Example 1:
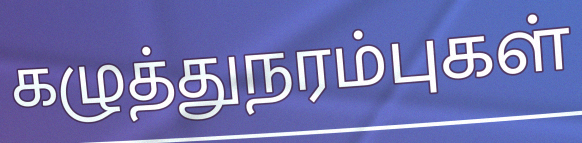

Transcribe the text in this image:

கழுத்துநரம்புகள்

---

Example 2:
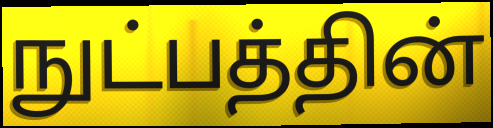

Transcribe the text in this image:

நுட்பத்தின்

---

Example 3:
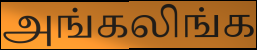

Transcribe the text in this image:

அங்கலிங்க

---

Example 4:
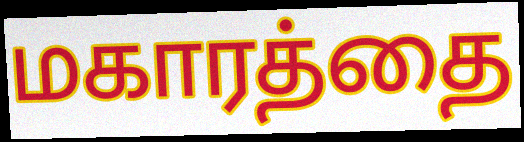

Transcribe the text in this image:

மகாரத்தை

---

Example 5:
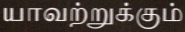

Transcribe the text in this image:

யாவற்றுக்கும்